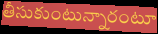
తీసుకుంటున్నారంటూ